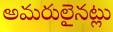
అమరులైనట్లు